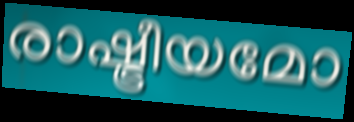
രാഷ്ട്രീയമോ